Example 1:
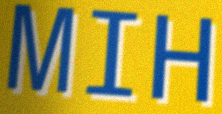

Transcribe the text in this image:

MIH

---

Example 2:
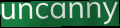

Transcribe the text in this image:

uncanny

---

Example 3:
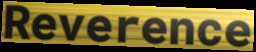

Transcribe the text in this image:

Reverence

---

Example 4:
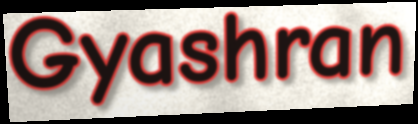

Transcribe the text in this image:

Gyashran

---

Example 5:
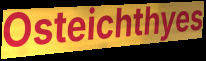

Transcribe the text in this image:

Osteichthyes